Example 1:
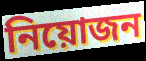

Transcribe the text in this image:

নিয়োজন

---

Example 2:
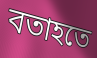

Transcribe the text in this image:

বতাহতে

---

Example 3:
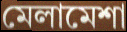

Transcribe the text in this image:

মেলামেশা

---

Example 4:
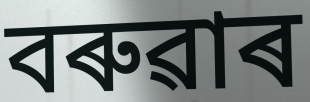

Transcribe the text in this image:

বৰুৱাৰ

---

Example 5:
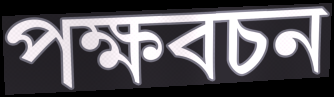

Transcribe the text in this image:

পক্ষবচন